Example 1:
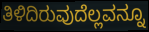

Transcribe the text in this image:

ತಿಳಿದಿರುವುದೆಲ್ಲವನ್ನೂ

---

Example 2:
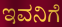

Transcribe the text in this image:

ಇವನಿಗೆ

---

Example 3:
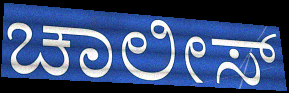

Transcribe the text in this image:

ಚಾಲೀಸ್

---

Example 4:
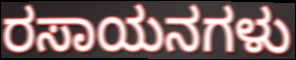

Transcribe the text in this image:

ರಸಾಯನಗಳು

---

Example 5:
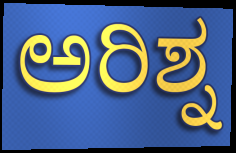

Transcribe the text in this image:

ಅರಿಶ್ನ